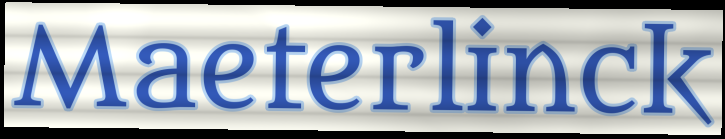
Maeterlinck